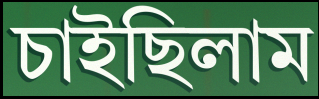
চাইছিলাম